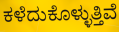
ಕಳೆದುಕೊಳ್ಳುತ್ತಿವೆ